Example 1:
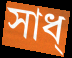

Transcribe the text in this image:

সাধ্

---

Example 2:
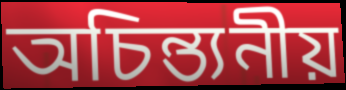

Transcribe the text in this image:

অচিন্ত্যনীয়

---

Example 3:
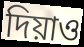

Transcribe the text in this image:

দিয়াও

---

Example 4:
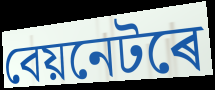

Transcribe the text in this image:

বেয়নেটৰে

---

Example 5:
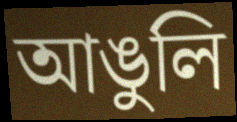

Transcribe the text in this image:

আঙুলি